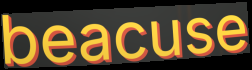
beacuse